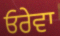
ਓਰੇਵਾ